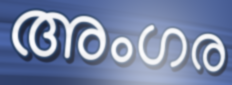
അംഗര